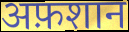
अफ़शान